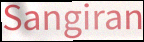
Sangiran